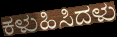
ಕಳುಹಿಸಿದಳು